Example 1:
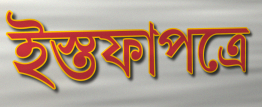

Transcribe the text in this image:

ইস্তফাপত্রে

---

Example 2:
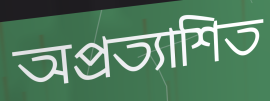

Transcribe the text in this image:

অপ্রত্যাশিত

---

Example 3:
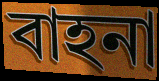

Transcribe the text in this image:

বাহনা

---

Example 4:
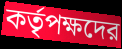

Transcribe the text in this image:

কর্তৃপক্ষদের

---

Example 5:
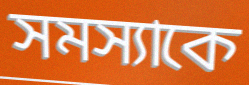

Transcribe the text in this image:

সমস্যাকে